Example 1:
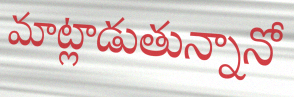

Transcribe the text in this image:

మాట్లాడుతున్నానో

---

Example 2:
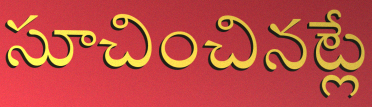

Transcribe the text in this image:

సూచించినట్లే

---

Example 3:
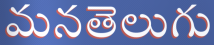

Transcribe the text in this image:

మనతెలుగు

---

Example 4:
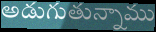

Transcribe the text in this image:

అడుగుతున్నాము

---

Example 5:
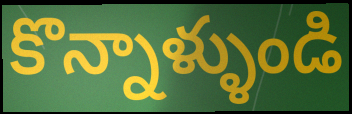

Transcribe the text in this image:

కొన్నాళ్ళుండి